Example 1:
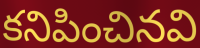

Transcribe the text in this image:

కనిపించినవి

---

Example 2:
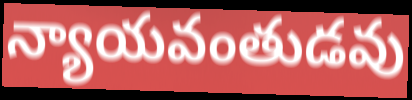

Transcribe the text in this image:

న్యాయవంతుడవు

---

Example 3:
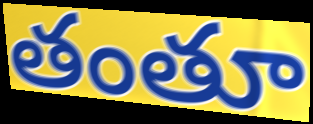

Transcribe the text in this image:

తంతూ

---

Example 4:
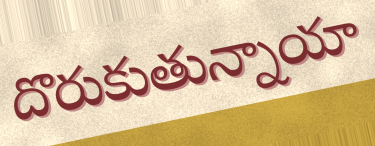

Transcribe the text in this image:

దొరుకుతున్నాయా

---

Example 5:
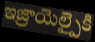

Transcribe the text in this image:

ఇజ్రాయెల్పైకి